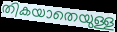
തികയാതെയുള്ള